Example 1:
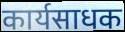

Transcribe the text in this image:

कार्यसाधक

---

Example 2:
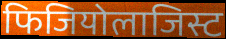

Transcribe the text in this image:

फिजियोलाजिस्ट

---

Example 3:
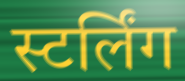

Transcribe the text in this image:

स्‍टर्लिंग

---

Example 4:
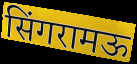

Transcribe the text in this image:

सिंगरामऊ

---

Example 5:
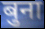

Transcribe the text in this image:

बुना